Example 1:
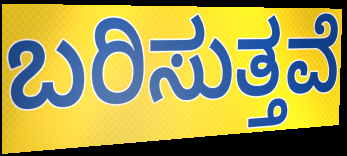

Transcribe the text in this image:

ಬರಿಸುತ್ತವೆ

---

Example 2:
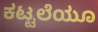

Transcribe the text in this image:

ಕಟ್ಟಲೆಯೂ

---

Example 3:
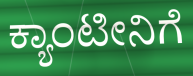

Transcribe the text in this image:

ಕ್ಯಾಂಟೀನಿಗೆ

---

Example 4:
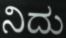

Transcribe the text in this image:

ನಿದು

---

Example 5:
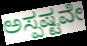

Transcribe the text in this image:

ಅಸ್ಪಷ್ಟವೇ